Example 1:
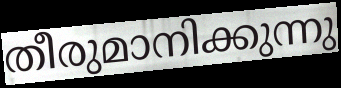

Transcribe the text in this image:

തീരുമാനിക്കുന്നു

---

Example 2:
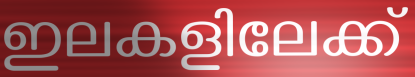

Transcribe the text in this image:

ഇലകളിലേക്ക്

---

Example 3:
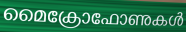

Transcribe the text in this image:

മൈക്രോഫോണുകൾ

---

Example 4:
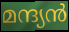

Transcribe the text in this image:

മന്ദ്യൻ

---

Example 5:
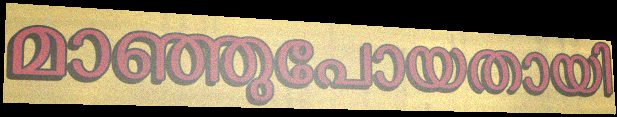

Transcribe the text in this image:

മാഞ്ഞുപോയതായി